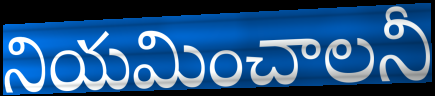
నియమించాలనీ